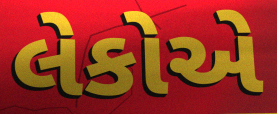
લેકોએ